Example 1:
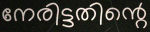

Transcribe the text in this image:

നേരിട്ടതിന്റെ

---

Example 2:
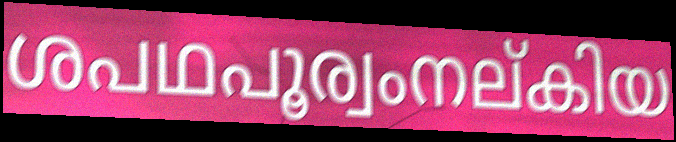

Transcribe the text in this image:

ശപഥപൂര്വംനല്കിയ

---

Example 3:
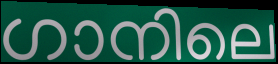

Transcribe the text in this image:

ഗാനിലെ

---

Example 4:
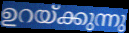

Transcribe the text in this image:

ഉറയ്ക്കുന്നു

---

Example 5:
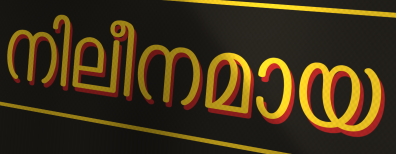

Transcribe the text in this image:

നിലീനമായ